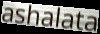
ashalata